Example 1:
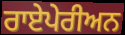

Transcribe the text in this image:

ਰਾਏਪੇਰੀਅਨ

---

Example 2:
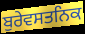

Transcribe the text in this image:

ਬੁਰੇਵਸਤਨਿਕ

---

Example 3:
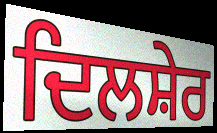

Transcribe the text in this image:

ਦਿਲਸ਼ੇਰ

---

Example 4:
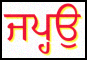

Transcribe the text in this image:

ਜਪ੍ਹਉ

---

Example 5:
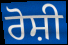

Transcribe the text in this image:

ਰੋਸ਼ੀ